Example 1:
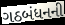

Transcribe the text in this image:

ગઠબંધનની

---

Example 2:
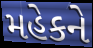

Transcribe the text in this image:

મહેકને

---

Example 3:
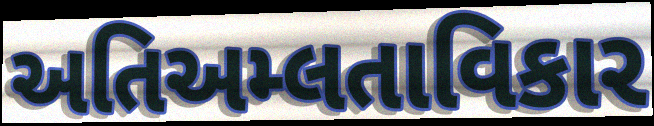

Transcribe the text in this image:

અતિઅમ્લતાવિકાર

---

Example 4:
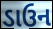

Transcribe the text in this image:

ડાઉન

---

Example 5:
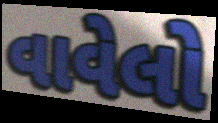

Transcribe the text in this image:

વાવેલો